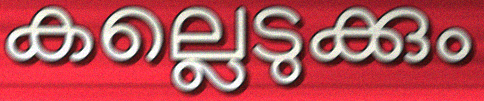
കല്ലെടുക്കും